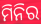
ମିନିର